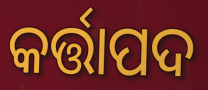
କର୍ତ୍ତାପଦ